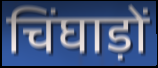
चिंघाड़ों